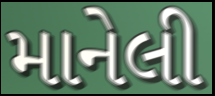
માનેલી